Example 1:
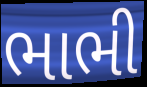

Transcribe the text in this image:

ભાભી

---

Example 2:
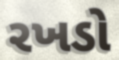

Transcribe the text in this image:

રખડો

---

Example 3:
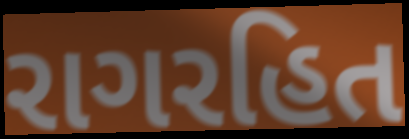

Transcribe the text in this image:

રાગરહિત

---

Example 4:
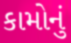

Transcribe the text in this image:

કામોનું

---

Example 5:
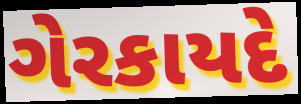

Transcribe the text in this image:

ગેરકાયદે